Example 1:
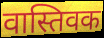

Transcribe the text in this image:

वास्तिवक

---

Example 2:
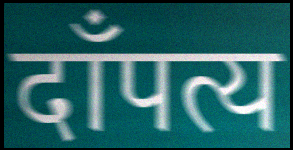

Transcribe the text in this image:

दाँपत्य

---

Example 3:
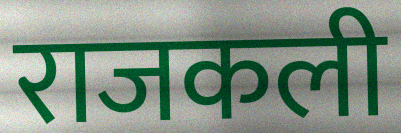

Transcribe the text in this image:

राजकली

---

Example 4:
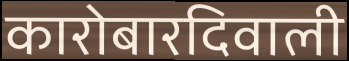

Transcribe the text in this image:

कारोबारदिवाली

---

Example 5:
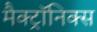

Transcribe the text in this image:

मैक्ट्रॉनिक्स